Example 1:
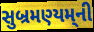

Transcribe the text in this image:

સુબ્રમણ્યમ્‌ની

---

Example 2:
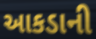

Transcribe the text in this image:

આકડાની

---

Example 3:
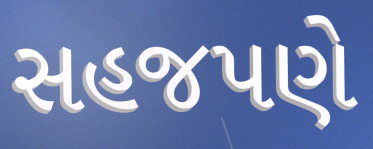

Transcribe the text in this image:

સહજપણે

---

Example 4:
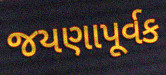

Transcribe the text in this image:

જયણાપૂર્વક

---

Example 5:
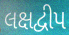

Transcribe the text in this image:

લક્ષદ્વીપ